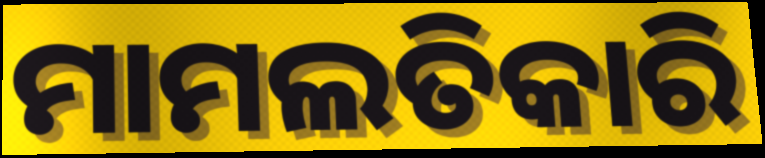
ମାମଲତିକାରି